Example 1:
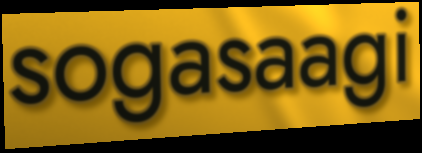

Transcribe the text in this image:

sogasaagi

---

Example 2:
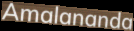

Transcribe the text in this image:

Amalananda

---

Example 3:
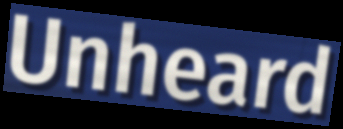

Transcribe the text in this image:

Unheard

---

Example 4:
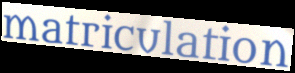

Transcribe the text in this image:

matriculation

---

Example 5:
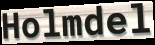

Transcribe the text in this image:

Holmdel